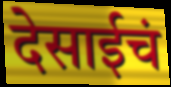
देसाईचं